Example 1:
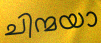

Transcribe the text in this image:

ചിന്മയാ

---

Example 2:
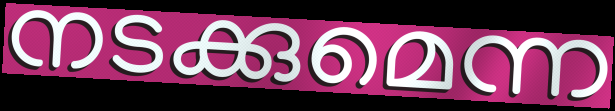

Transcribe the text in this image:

നടക്കുമെന്ന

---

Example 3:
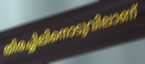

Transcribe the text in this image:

തിരച്ചിലിനൊടുവിലാണ്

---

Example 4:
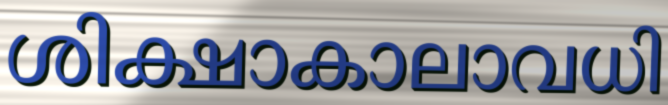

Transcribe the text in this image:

ശിക്ഷാകാലാവധി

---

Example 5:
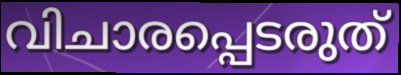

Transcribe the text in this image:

വിചാരപ്പെടരുത്